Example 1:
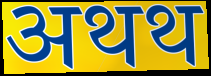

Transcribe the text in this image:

अथथ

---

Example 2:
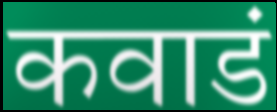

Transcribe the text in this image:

कवाडं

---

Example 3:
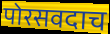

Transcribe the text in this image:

पोरसवदाच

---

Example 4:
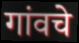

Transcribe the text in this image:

गांवचे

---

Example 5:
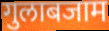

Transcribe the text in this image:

गुलाबजाम